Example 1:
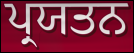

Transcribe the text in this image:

ਪ੍ਰਯਤਨ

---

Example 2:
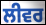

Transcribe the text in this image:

ਲੀਵਰ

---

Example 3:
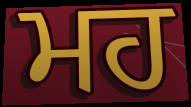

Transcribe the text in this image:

ਮਹ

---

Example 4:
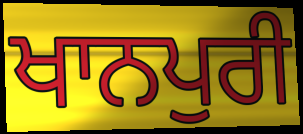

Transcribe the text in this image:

ਖਾਨਪੁਰੀ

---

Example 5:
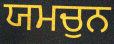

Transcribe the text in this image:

ਯਮਚੁਨ